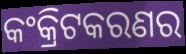
କଂକ୍ରିଟକରଣର